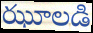
ఝూలడి